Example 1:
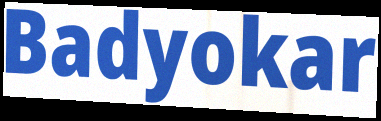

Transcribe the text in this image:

Badyokar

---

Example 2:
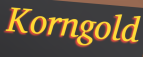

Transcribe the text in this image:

Korngold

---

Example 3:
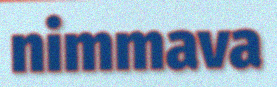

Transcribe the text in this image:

nimmava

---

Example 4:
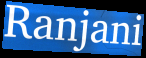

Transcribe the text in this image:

Ranjani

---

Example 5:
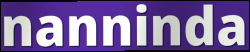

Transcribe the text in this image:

nanninda